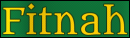
Fitnah